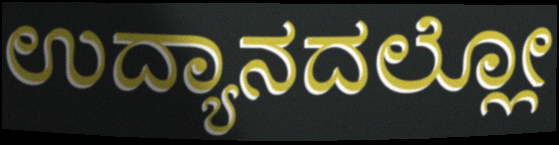
ಉದ್ಯಾನದಲ್ಲೋ